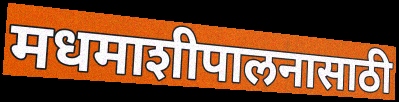
मधमाशीपालनासाठी